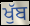
ਖੁੱਬ